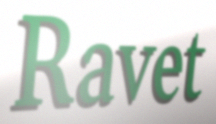
Ravet